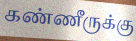
கண்ணீருக்கு